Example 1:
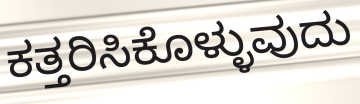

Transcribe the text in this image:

ಕತ್ತರಿಸಿಕೊಳ್ಳುವುದು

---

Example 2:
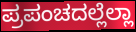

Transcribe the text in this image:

ಪ್ರಪಂಚದಲ್ಲೆಲ್ಲಾ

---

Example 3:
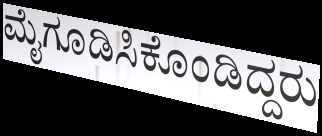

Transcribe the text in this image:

ಮೈಗೂಡಿಸಿಕೊಂಡಿದ್ದರು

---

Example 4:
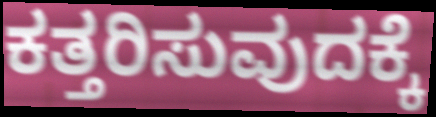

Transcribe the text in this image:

ಕತ್ತರಿಸುವುದಕ್ಕೆ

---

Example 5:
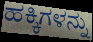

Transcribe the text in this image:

ಹಕ್ಕಿಗಳನ್ನು